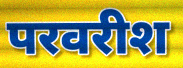
परवरीश